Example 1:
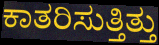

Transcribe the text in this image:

ಕಾತರಿಸುತ್ತಿತ್ತು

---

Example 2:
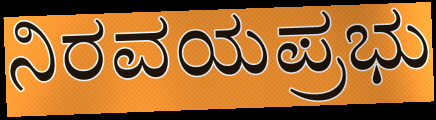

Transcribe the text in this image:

ನಿರವಯಪ್ರಭು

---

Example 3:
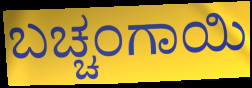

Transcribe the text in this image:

ಬಚ್ಚಂಗಾಯಿ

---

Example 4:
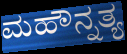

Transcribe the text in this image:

ಮಹೌನ್ನತ್ಯ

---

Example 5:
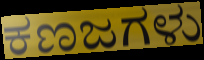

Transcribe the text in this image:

ಕಣಜಗಳು